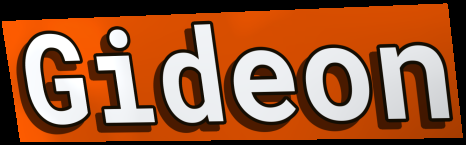
Gideon